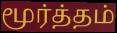
மூர்த்தம்